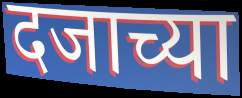
दजाच्या